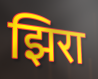
झिरा